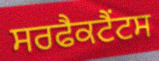
ਸਰਫੈਕਟੈਂਟਸ